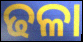
ଢଳା